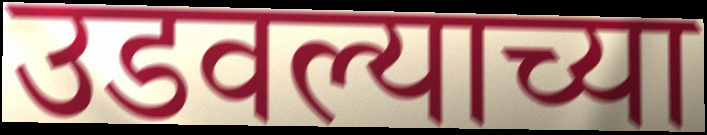
उडवल्याच्या